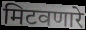
मिटवणारे